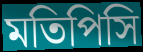
মতিপিসি